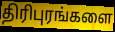
திரிபுரங்களை